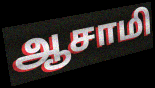
ஆசாமி